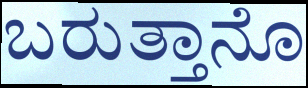
ಬರುತ್ತಾನೊ